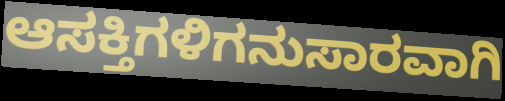
ಆಸಕ್ತಿಗಳಿಗನುಸಾರವಾಗಿ